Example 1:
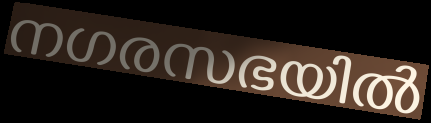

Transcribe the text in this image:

നഗരസഭയിൽ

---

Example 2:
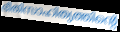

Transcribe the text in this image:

ഭീതിസാഹിത്യത്തിന്റെ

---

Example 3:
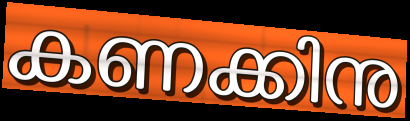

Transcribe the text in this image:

കണക്കിനു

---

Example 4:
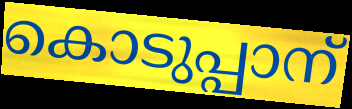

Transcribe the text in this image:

കൊടുപ്പാന്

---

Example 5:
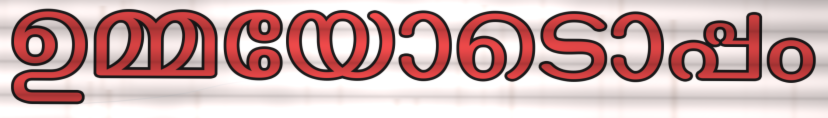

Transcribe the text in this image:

ഉമ്മയോടൊപ്പം